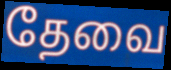
தேவை